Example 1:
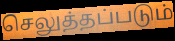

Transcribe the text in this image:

செலுத்தப்படும்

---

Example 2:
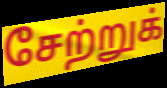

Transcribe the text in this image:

சேற்றுக்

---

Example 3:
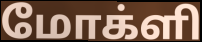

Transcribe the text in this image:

மோக்ளி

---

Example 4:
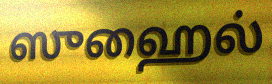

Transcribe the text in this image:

ஸுஹைல்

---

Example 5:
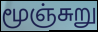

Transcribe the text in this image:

மூஞ்சுறு